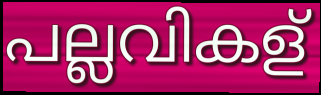
പല്ലവികള്